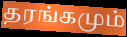
தரங்கமும்